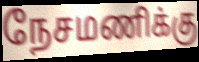
நேசமணிக்கு